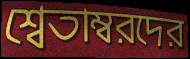
শ্বেতাম্বরদের